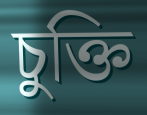
চুক্তি